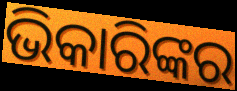
ଭିକାରିଙ୍କର